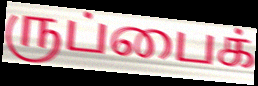
ருப்பைக்